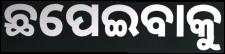
ଛପେଇବାକୁ